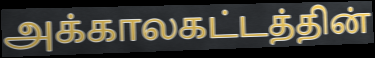
அக்காலகட்டத்தின்